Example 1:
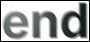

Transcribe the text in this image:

end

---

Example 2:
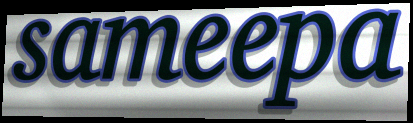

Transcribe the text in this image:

sameepa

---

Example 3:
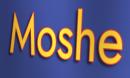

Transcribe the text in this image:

Moshe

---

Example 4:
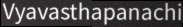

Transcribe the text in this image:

Vyavasthapanachi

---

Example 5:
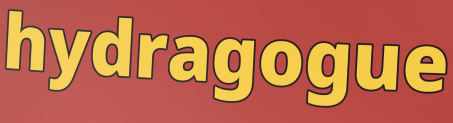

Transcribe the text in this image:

hydragogue